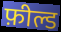
फ़ील्ड